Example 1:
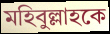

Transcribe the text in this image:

মহিবুল্লাহকে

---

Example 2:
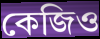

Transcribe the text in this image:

কেজিও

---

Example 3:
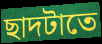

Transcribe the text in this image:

ছাদটাতে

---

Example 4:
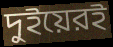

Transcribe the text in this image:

দুইয়েরই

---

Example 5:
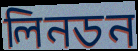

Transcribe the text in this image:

লিনডন